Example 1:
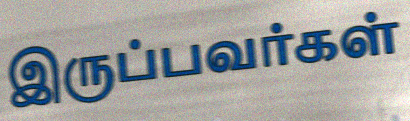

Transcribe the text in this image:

இருப்பவர்கள்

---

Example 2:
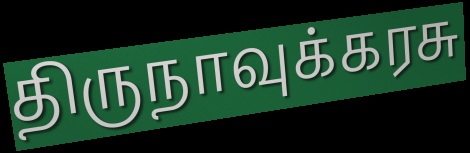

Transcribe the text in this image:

திருநாவுக்கரசு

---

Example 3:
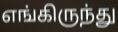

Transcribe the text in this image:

எங்கிருந்து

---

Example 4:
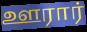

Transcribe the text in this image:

ஊரார்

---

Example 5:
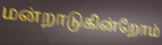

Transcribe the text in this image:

மன்றாடுகின்றோம்